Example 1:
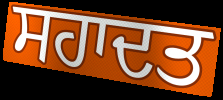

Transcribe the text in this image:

ਸਹਾਦਤ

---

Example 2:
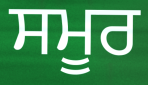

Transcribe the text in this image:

ਸਮੂਰ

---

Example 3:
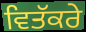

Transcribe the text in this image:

ਵਿਤੱਕਰੇ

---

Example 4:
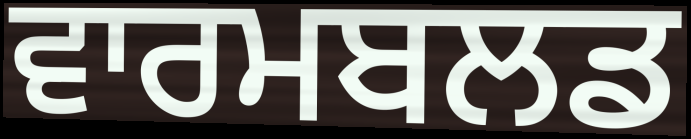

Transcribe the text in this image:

ਵਾਰਮਬਲਡ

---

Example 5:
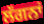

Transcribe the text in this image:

ਲੱਗਨਾਂ